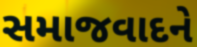
સમાજવાદને